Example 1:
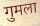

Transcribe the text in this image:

गुमला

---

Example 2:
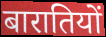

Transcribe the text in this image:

बारातियों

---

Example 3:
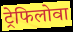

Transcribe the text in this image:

ट्रेफिलोवा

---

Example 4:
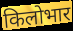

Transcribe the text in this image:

किलोभार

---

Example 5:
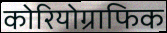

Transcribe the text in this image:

कोरियोग्राफिक